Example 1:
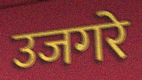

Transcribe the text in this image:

उजगरे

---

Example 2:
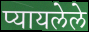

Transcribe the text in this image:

प्यायलेले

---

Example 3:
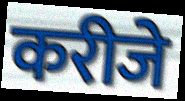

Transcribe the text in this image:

करीजे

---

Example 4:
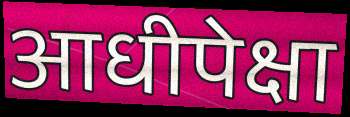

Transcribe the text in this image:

आधीपेक्षा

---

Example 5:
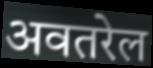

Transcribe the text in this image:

अवतरेल